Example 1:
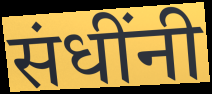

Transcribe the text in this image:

संधींनी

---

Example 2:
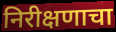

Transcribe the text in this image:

निरीक्षणाचा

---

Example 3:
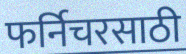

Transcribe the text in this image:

फर्निचरसाठी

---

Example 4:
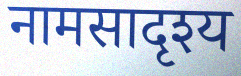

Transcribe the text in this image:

नामसादृश्य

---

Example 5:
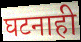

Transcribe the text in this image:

घटनाही